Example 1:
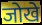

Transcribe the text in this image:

जोखे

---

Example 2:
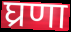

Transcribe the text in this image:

घ्रणा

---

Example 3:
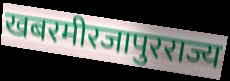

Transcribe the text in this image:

खबरमीरजापुरराज्य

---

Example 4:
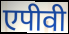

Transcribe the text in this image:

एपीवी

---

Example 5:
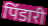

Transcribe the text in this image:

पिंडारी